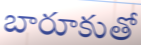
బారూకుతో